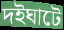
দইঘাটে